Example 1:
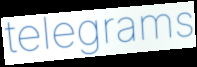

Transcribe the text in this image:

telegrams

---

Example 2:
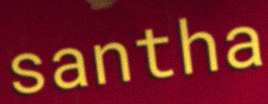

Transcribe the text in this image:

santha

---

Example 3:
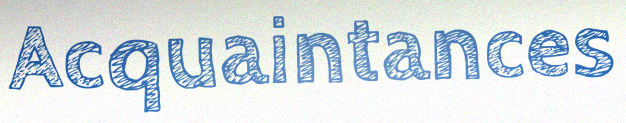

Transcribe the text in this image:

Acquaintances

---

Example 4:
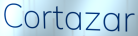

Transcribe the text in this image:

Cortazar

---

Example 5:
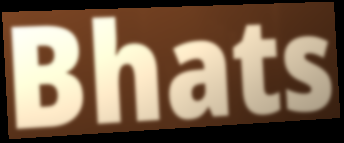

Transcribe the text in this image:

Bhats